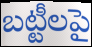
బట్టీలపై